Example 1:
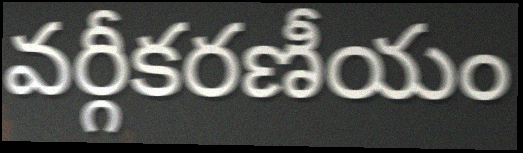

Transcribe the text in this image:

వర్గీకరణీయం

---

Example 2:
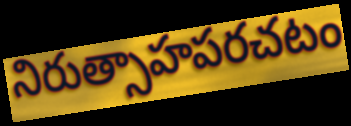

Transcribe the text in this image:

నిరుత్సాహపరచటం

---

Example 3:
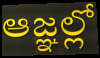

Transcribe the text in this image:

ఆజ్ఞల్లో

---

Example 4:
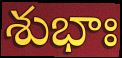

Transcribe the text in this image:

శుభాః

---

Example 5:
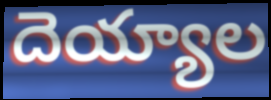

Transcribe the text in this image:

దెయ్యాల